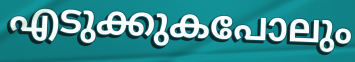
എടുക്കുകപോലും